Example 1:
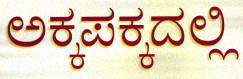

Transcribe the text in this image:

ಅಕ್ಕಪಕ್ಕದಲ್ಲಿ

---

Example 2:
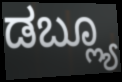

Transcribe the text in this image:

ಡಬ್ಲ್ಯೂ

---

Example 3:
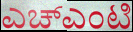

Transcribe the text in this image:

ಎಚ್ಎಂಟಿ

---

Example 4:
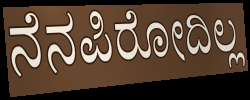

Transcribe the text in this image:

ನೆನಪಿರೋದಿಲ್ಲ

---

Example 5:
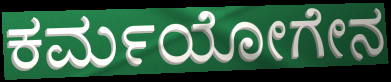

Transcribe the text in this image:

ಕರ್ಮಯೋಗೇನ